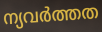
ന്യവർത്തത